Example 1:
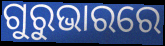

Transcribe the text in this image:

ଗୁରୁଭାରରେ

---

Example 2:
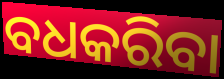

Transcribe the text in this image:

ବଧକରିବା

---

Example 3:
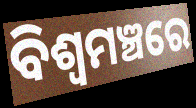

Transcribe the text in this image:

ବିଶ୍ୱମଞ୍ଚରେ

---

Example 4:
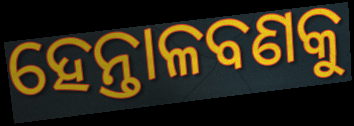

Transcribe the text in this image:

ହେନ୍ତାଳବଣକୁ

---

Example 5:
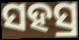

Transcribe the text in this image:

ସହସ୍ର